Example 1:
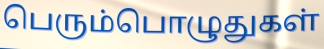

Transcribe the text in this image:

பெரும்பொழுதுகள்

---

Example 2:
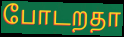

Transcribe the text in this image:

போடறதா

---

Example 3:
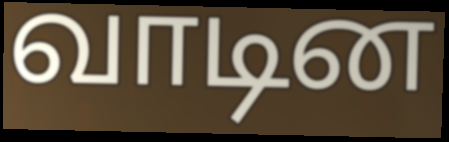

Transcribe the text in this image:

வாடின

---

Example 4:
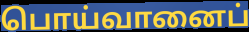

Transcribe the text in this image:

பொய்வானைப்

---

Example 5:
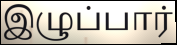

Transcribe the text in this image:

இழுப்பார்